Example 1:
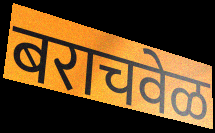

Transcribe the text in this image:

बराचवेळ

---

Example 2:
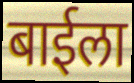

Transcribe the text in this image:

बाईला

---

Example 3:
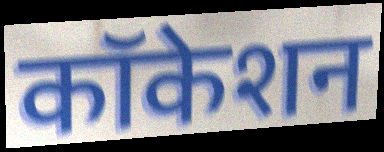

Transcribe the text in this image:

कॉकेशन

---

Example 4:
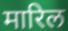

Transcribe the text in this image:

मारिल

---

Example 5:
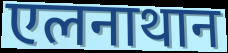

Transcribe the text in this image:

एलनाथान